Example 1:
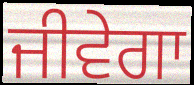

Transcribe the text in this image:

ਜੀਵੇਗਾ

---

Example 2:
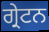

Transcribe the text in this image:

ਗ੍ਰੇਟਨ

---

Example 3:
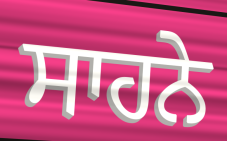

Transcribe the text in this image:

ਸਾਹਨੇ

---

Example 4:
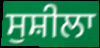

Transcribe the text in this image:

ਸੁਸ਼ੀਲਾ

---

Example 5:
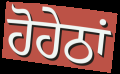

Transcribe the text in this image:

ਹੋਹੇਠਾਂ